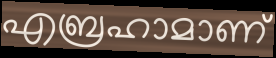
എബ്രഹാമാണ്